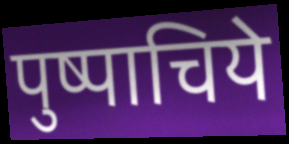
पुष्पाचिये